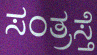
ಸಂತ್ರಸ್ತೆ